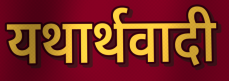
यथार्थवादी